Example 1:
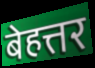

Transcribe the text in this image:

बेहत्तर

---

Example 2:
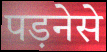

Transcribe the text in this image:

पड़नेसे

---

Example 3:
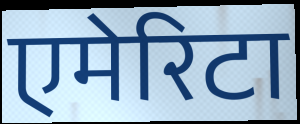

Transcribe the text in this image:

एमेरिटा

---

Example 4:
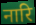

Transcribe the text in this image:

नारि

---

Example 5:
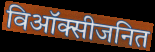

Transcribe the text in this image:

विऑक्सीजनित